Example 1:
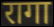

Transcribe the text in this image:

रागा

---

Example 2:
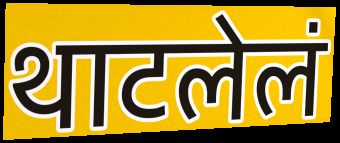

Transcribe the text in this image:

थाटलेलं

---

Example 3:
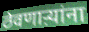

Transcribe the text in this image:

ठेवणाऱ्‍यांना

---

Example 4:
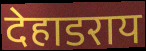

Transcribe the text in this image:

देहाडराय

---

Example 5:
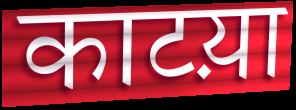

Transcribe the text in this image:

काटय़ा